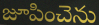
జూపించెను